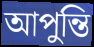
আপুন্তি